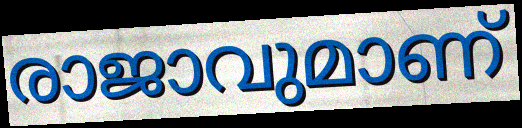
രാജാവുമാണ്